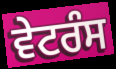
ਵੇਟਰੰਸ